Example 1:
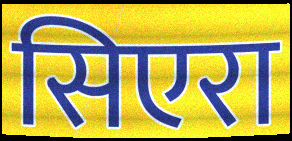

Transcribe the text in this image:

सिएरा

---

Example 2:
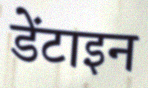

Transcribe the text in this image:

डेंटाइन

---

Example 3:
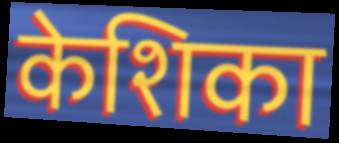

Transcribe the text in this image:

केशिका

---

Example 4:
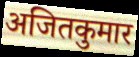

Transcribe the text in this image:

अजितकुमार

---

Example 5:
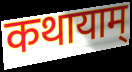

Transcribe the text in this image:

कथायाम्